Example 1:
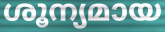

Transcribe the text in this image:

ശൂന്യമായ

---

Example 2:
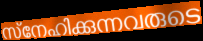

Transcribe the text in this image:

സ്‌നേഹിക്കുന്നവരുടെ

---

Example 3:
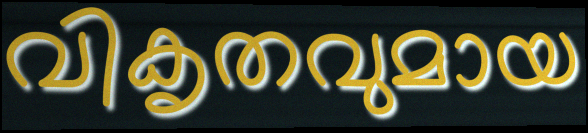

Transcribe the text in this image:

വികൃതവുമായ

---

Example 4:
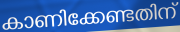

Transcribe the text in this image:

കാണിക്കേണ്ടതിന്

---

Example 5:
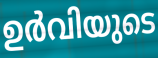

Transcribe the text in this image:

ഉർവിയുടെ